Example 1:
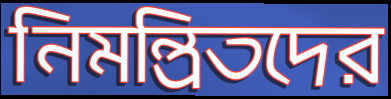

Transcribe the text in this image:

নিমন্ত্রিতদের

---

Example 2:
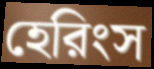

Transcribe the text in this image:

হেরিংস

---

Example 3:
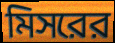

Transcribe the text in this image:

মিসরের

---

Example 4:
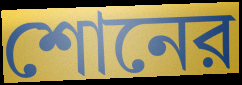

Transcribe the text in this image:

শোনের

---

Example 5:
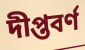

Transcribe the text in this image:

দীপ্তবর্ণ